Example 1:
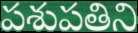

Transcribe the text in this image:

పశుపతిని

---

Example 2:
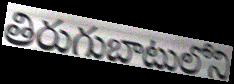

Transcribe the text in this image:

తిరుగుబాటులోని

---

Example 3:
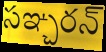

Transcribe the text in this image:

సఞ్చరన్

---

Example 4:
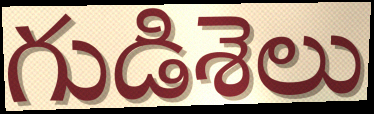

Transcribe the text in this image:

గుడిశెలు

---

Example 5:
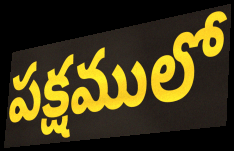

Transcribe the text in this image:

పక్షములో